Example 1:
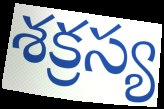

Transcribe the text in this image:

శక్రస్య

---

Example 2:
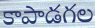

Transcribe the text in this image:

కాపాడగల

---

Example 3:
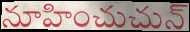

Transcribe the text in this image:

నూహించుచున్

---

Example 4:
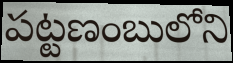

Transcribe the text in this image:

పట్టణంబులోని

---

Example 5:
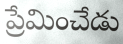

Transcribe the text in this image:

ప్రేమించేడు